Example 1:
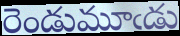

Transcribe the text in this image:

రెండుమూఁడు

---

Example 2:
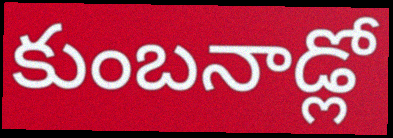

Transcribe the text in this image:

కుంబనాడ్లో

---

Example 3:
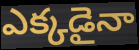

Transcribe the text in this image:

ఎక్కడైనా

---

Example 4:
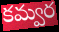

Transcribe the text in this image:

కమ్వర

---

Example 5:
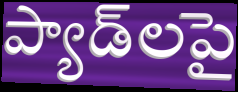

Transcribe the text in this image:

ప్యాడ్‌లపై